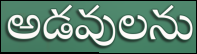
అడవులను